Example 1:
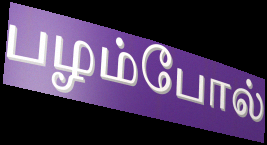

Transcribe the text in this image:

பழம்போல்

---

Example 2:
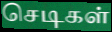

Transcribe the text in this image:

செடிகள்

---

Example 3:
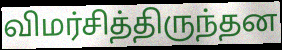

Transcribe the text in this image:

விமர்சித்திருந்தன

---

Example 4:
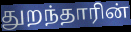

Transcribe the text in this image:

துறந்தாரின்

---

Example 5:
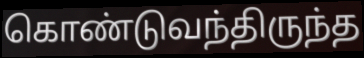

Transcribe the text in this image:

கொண்டுவந்திருந்த